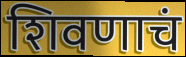
शिवणाचं